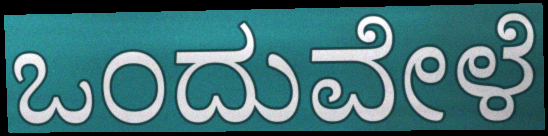
ಒಂದುವೇಳೆ